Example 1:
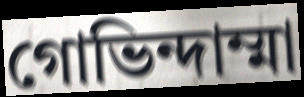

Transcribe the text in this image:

গোভিন্দাম্মা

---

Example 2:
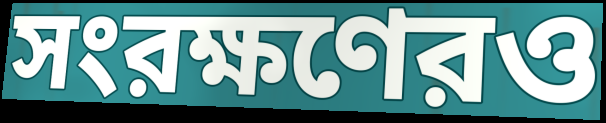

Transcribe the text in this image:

সংরক্ষণেরও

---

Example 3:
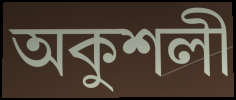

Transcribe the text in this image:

অকুশলী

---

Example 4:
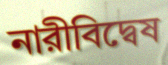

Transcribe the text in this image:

নারীবিদ্বেষ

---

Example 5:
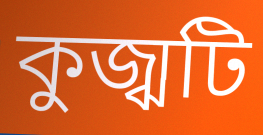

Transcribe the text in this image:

কুজ্ঝটি